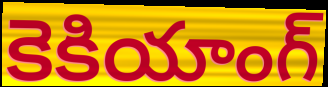
కెకియాంగ్